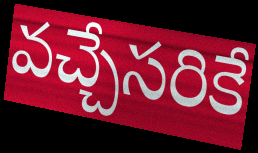
వచ్చేసరికే